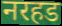
नरहड